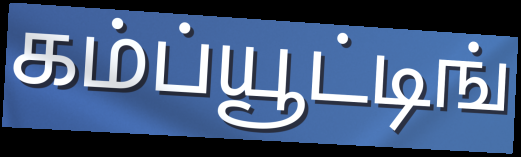
கம்ப்யூட்டிங்